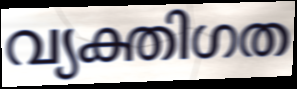
വ്യക്തിഗത